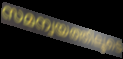
സമന്വയത്തിലൂടെ